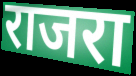
राजरा